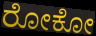
ರೋಕೋ